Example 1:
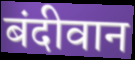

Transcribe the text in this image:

बंदीवान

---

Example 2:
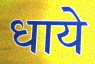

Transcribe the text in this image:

धाये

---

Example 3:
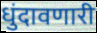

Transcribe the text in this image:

धुंदावणारी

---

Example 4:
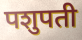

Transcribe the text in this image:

पशुपती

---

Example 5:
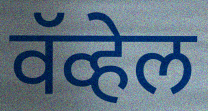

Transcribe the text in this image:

वॅव्हेल